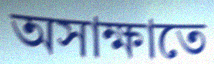
অসাক্ষাতে